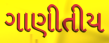
ગાણીતીય